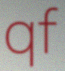
qf